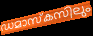
ഡമാസ്കസിലും